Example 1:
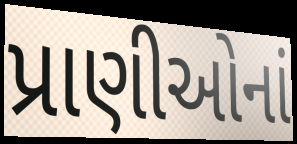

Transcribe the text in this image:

પ્રાણીઓનાં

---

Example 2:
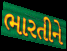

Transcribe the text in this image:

ભારતીને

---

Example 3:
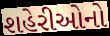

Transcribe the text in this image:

શહેરીઓનો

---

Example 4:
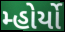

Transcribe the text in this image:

મ્હોર્યો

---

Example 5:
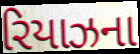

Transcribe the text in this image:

રિયાઝના